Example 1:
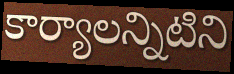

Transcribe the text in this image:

కార్యాలన్నిటిని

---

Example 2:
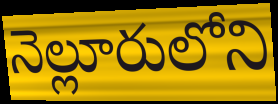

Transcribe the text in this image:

నెల్లూరులోని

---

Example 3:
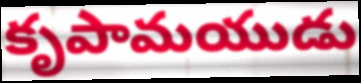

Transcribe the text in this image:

కృపామయుడు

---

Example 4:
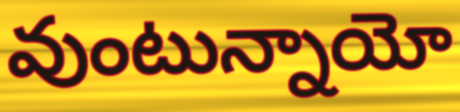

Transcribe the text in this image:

వుంటున్నాయో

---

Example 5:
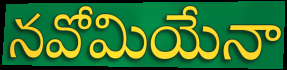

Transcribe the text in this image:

నవోమియేనా